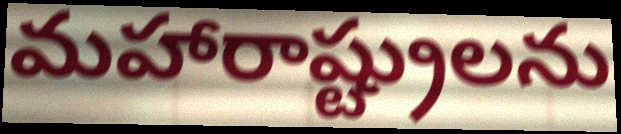
మహారాష్ట్రులను